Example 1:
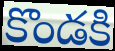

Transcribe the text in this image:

కొండకి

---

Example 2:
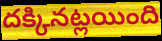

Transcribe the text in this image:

దక్కినట్లయింది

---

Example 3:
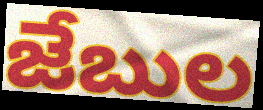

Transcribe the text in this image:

జేబుల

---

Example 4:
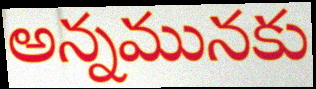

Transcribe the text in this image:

అన్నమునకు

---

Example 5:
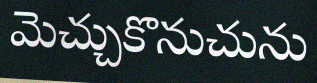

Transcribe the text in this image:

మెచ్చుకొనుచును